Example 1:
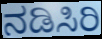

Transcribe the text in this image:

ನಡಿಸಿರಿ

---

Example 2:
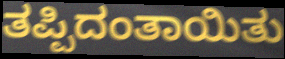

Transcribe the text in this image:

ತಪ್ಪಿದಂತಾಯಿತು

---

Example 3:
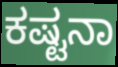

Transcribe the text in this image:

ಕಷ್ಟನಾ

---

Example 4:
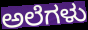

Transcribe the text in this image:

ಅಲೆಗಳು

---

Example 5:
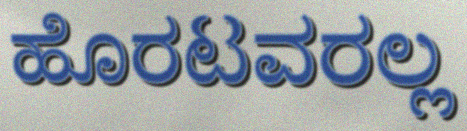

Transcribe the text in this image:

ಹೊರಟವರಲ್ಲ